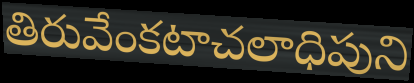
తిరువేంకటాచలాధిపుని